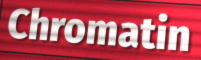
Chromatin